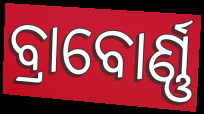
ବ୍ରାବୋର୍ଣ୍ଣ